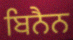
ਬਿਨੈਨ